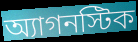
অ্যাগনস্টিক